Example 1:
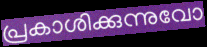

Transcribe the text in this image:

പ്രകാശിക്കുന്നുവോ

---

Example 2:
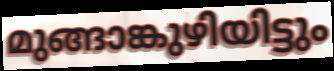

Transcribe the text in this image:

മുങ്ങാങ്കുഴിയിട്ടും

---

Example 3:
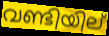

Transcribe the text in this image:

വണ്ടിയില്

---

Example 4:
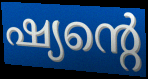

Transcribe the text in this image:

ഷ്യന്റെ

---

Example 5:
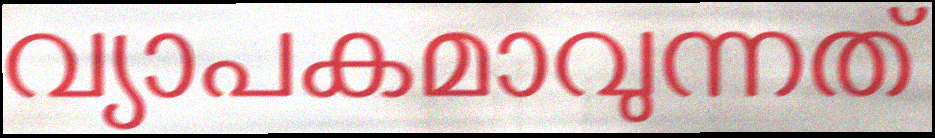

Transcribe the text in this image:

വ്യാപകമാവുന്നത്